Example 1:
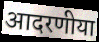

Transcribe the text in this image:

आदरणीया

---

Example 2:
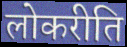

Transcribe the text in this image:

लोकरीति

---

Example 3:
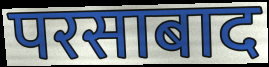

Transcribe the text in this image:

परसाबाद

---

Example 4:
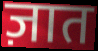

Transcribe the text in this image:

ज़ात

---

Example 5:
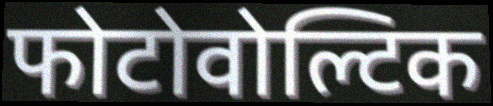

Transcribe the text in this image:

फोटोवोल्टिक